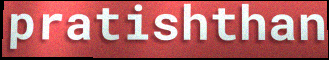
pratishthan